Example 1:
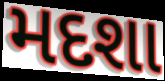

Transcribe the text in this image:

મદશા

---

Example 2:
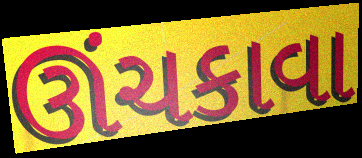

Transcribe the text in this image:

ઊંચકાવા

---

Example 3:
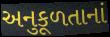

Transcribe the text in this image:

અનુકૂળતાનાં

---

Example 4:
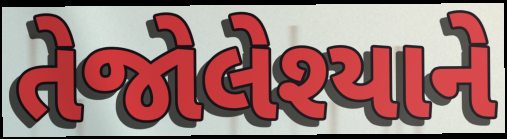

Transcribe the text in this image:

તેજોલેશ્યાને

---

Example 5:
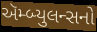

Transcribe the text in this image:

ઍમ્બ્યુલન્સનો